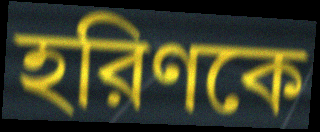
হরিণকে